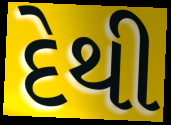
દેથી